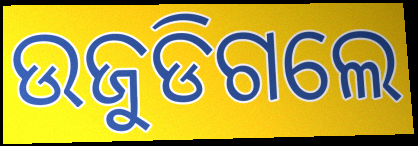
ଉଜୁଡିଗଲେ